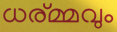
ധര്മ്മവും